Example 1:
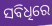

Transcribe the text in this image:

ସବିଧିରେ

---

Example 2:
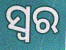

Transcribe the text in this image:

ସ୍ବର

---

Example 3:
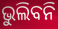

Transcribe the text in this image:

ଭୁଲିବନି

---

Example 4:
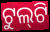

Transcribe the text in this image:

ଟୁଲ୍‌ଟି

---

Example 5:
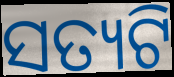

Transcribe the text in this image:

ସତ୍ୟଟି